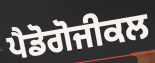
ਪੈਡੋਗੋਜੀਕਲ